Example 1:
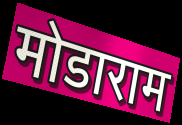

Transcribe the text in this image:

मोडाराम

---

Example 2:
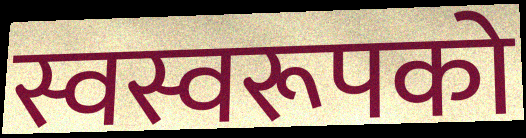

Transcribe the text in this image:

स्वस्वरूपको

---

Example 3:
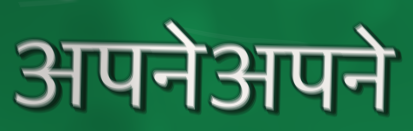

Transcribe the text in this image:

अपनेअपने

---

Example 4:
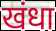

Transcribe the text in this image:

खंधा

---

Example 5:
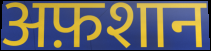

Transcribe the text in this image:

अफ़शान